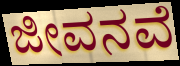
ಜೀವನವೆ